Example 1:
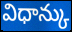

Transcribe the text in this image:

విధాన్కు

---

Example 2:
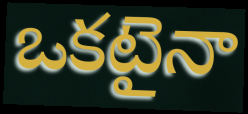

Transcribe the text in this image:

ఒకటైనా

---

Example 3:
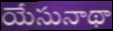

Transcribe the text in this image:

యేసునాథా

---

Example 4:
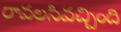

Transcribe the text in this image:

రావలసివచ్చింది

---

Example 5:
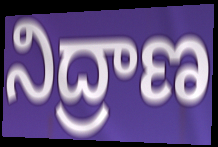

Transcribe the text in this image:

నిద్రాణ